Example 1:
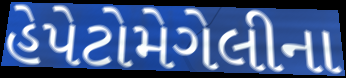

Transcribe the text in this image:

હેપેટોમેગેલીના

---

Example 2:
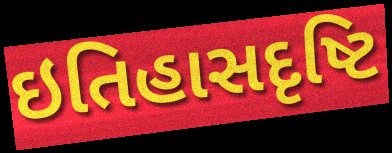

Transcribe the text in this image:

ઇતિહાસદૃષ્ટિ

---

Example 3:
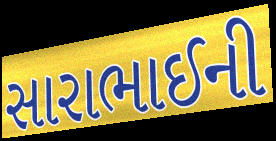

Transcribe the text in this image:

સારાભાઈની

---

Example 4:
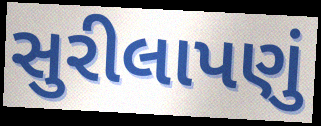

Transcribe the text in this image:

સુરીલાપણું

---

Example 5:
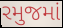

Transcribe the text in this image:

રમુજમાં